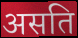
असति